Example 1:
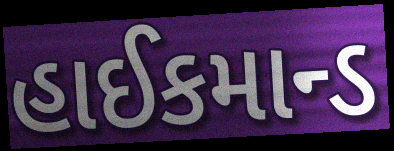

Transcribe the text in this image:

હાઈકમાન્ડ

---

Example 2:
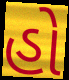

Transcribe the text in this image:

હો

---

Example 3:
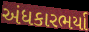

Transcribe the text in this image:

અંધકારભર્યા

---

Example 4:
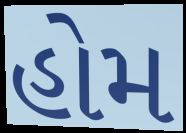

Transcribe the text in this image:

હોમ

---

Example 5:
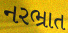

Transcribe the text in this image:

નરભ્રાત